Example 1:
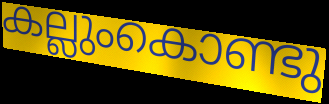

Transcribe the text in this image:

കല്ലുംകൊണ്ടു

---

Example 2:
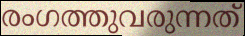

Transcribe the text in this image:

രംഗത്തുവരുന്നത്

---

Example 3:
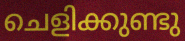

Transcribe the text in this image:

ചെളിക്കുണ്ടു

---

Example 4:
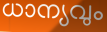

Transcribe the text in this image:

ധാന്യവും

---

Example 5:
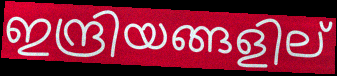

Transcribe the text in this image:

ഇന്ദ്രിയങ്ങളില്